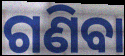
ଗଣିବା